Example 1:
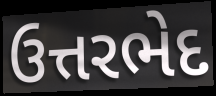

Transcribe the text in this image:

ઉત્તરભેદ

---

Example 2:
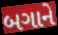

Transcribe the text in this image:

બગાને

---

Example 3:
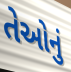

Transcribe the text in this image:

તેઓનું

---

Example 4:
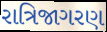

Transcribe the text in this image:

રાત્રિજાગરણ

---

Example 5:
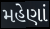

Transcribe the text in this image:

મહેણાં